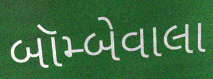
બૉમ્બેવાલા